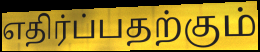
எதிர்ப்பதற்கும்